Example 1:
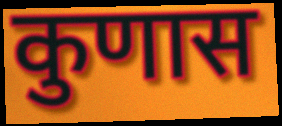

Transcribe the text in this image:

कुणास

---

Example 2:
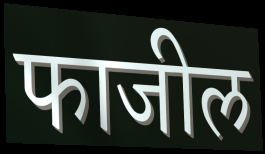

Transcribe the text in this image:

फाजील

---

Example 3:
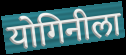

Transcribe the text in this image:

योगिनीला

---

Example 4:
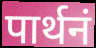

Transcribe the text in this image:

पार्थनं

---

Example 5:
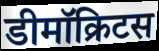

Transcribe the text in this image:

डीमॉक्रिटस